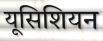
यूसिशियन